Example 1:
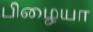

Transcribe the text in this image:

பிழையா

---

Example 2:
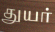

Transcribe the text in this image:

துயர்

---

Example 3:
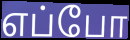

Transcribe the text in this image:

எப்போ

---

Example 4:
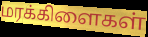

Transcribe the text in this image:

மரக்கிளைகள்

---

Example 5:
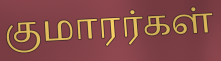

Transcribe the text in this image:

குமாரர்கள்